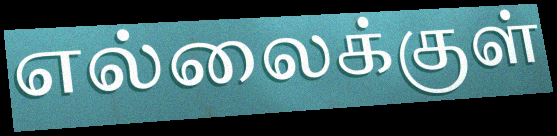
எல்லைக்குள்